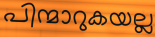
പിന്മാറുകയല്ല